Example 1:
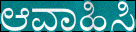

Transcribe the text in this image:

ಆವಾಹಿಸಿ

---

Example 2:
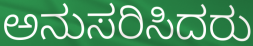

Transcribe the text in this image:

ಅನುಸರಿಸಿದರು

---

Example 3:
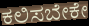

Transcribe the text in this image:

ಕಲಿಸಬೇಕೇ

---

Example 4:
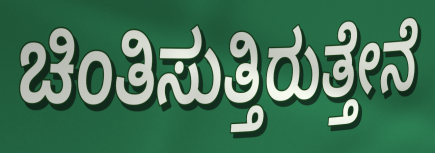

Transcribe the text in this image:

ಚಿಂತಿಸುತ್ತಿರುತ್ತೇನೆ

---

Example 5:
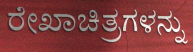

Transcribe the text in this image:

ರೇಖಾಚಿತ್ರಗಳನ್ನು